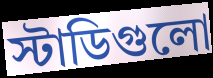
স্টাডিগুলো